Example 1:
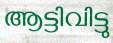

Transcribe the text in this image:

ആട്ടിവിട്ടു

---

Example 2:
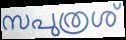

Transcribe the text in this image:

സപുത്രശ്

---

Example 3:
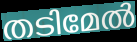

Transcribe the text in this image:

തടിമേൽ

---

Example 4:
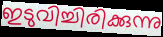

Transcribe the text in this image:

ഇടുവിച്ചിരിക്കുന്നു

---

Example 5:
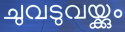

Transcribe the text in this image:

ചുവടുവയ്ക്കും